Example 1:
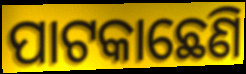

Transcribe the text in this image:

ପାଟକାଛେଣି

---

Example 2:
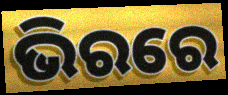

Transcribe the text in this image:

ଭିରରେ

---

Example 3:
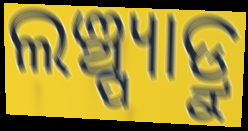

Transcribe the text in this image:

ଲଞ୍ଚ୍ପ୍ୟାଡ୍ରୁ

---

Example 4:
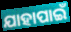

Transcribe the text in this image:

ଯାହାପାଇଁ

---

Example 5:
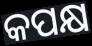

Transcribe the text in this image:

କପକ୍ଷ